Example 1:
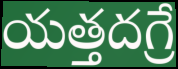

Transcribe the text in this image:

యత్తదగ్రే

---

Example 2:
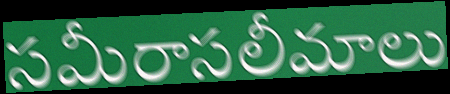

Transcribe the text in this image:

సమీరాసలీమాలు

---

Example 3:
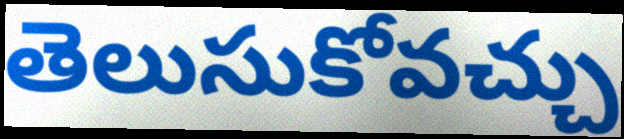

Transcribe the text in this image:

తెలుసుకోవచ్చు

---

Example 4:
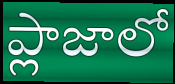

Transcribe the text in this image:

ప్లాజాలో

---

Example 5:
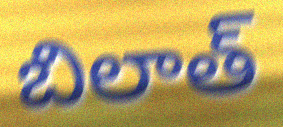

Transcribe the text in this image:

బిలాత్